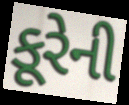
કૂરેની